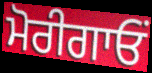
ਮੋਰੀਗਾਓਂ